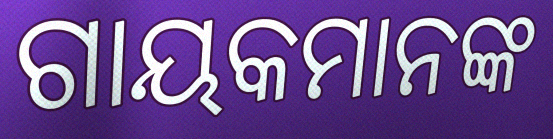
ଗାୟକମାନଙ୍କ